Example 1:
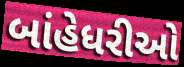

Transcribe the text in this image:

બાંહેધરીઓ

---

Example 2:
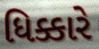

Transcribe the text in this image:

ધિક્કારે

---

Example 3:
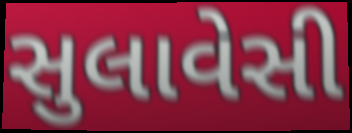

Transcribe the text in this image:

સુલાવેસી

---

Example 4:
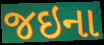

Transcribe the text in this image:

જઇના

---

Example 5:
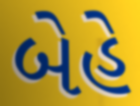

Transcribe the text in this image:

બેહે